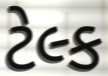
ટેલ્ક